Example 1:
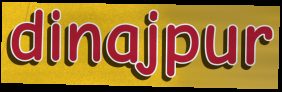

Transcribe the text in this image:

dinajpur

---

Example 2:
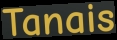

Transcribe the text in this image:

Tanais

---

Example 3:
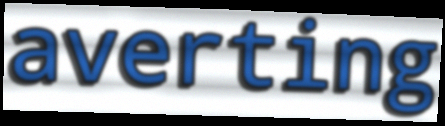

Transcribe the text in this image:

averting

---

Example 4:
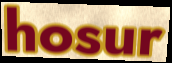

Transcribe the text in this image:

hosur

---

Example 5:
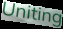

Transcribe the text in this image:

Uniting